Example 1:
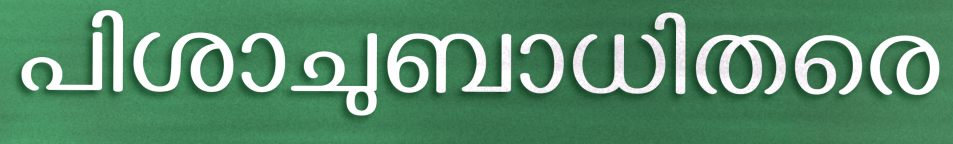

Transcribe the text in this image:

പിശാചുബാധിതരെ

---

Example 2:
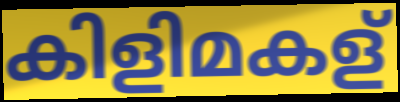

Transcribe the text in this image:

കിളിമകള്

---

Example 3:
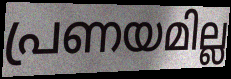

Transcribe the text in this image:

പ്രണയമില്ല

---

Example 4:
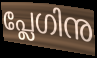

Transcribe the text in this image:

പ്ലേഗിനു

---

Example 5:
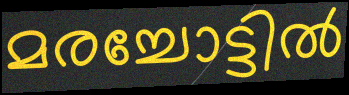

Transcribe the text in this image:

മരച്ചോട്ടിൽ